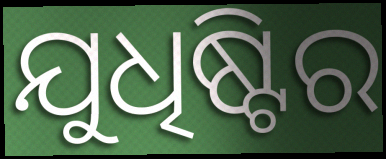
ଯୁଧିଷ୍ଟିର